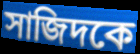
সাজিদকে